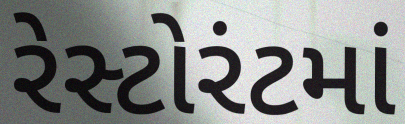
રેસ્ટોરંટમાં